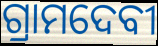
ଗ୍ରାମଦେବୀ